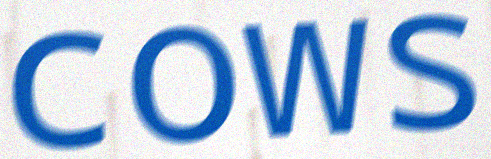
cows